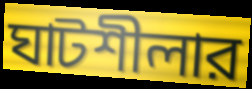
ঘাটশীলার